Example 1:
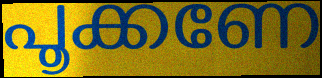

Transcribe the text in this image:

പൂക്കണേ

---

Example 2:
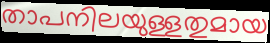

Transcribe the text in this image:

താപനിലയുള്ളതുമായ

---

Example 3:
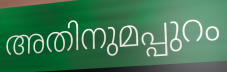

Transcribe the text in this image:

അതിനുമപ്പുറം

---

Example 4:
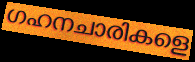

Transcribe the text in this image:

ഗഹനചാരികളെ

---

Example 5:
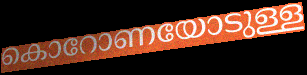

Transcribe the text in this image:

കൊറോണയോടുള്ള